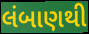
લંબાણથી